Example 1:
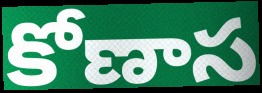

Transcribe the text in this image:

కోణాస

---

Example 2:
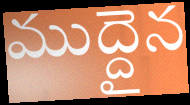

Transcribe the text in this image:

ముద్దైన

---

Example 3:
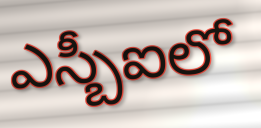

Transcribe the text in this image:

ఎస్బీఐలో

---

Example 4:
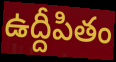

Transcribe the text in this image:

ఉద్దీపితం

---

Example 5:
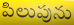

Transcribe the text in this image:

పిలుపును